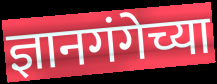
ज्ञानगंगेच्या